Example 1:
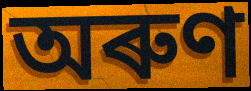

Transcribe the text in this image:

অৰুণ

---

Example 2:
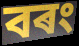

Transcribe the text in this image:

বৰং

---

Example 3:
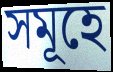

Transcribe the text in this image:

সমূহে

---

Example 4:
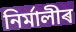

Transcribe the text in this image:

নিৰ্মালীৰ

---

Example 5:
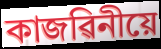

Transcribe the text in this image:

কাজৱিনীয়ে